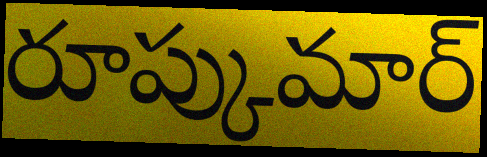
రూప్కుమార్